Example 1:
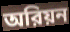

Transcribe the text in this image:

অরিয়ন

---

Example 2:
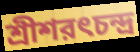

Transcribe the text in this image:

শ্রীশরৎচন্দ্র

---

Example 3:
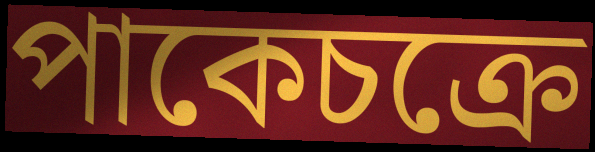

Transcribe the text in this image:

পাকেচক্রে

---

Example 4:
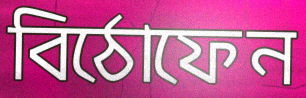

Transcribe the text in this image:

বিঠোফেন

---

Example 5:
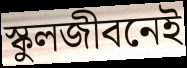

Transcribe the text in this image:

স্কুলজীবনেই